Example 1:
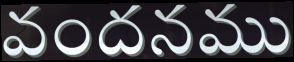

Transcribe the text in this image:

వందనము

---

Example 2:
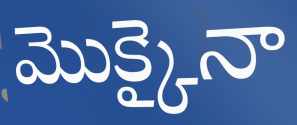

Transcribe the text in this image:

మొక్కైనా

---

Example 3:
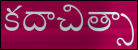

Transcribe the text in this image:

కదాచిత్సా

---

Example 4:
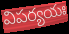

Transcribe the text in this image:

విపర్యయః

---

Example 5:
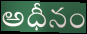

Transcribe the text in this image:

అధీనం